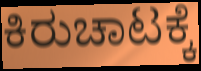
ಕಿರುಚಾಟಕ್ಕೆ